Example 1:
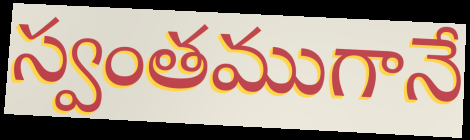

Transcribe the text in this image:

స్వంతముగానే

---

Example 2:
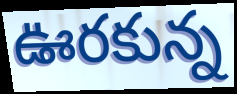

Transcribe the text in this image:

ఊరకున్న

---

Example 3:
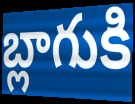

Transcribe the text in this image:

బ్లాగుకి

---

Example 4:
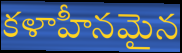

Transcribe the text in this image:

కళాహీనమైన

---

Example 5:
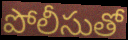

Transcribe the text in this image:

పోలీసుతో